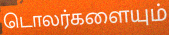
டொலர்களையும்